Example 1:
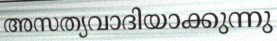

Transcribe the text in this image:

അസത്യവാദിയാക്കുന്നു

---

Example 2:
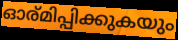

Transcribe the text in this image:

ഓര്മിപ്പിക്കുകയും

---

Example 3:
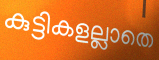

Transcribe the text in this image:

കുട്ടികളല്ലാതെ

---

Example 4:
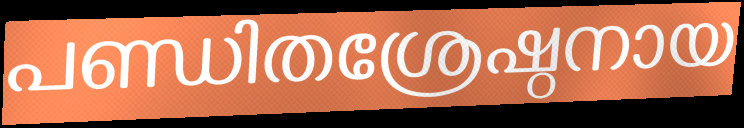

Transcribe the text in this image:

പണ്ഡിതശ്രേഷ്ഠനായ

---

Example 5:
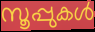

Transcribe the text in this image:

സൂപ്പുകൾ